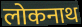
लोकनाथ